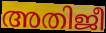
അതിജീ